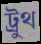
ট্রুথ